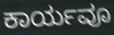
ಕಾರ್ಯವೂ